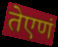
तेएणं